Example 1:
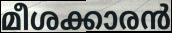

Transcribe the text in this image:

മീശക്കാരൻ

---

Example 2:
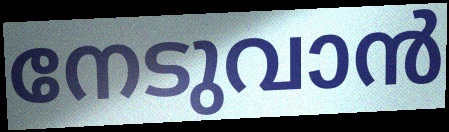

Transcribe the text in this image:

നേടുവാൻ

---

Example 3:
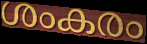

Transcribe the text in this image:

ശംകരം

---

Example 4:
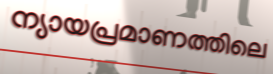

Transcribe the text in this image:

ന്യായപ്രമാണത്തിലെ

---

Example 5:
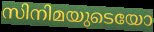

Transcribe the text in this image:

സിനിമയുടെയോ